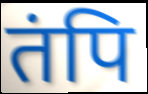
तंपि